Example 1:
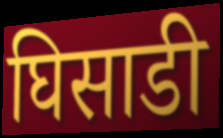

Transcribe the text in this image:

घिसाडी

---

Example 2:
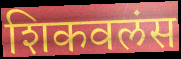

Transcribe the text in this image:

शिकवलंस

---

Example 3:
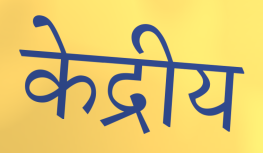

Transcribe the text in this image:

केद्रीय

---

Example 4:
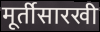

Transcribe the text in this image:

मूर्तीसारखी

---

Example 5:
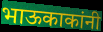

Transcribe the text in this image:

भाऊकाकांनी